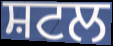
ਸ਼ਟਲ